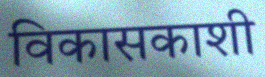
विकासकाशी